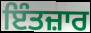
ਇੰਤਜ਼ਾਰ